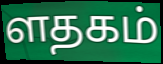
ளதகம்